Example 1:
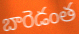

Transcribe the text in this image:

బారెడంత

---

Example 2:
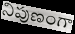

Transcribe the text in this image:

నిపుణంగా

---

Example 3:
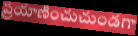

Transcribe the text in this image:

ప్రయాణించుచుండగా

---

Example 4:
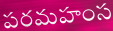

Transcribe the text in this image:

పరమహంస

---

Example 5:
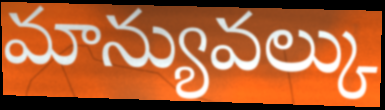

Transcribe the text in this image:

మాన్యువల్కు